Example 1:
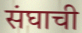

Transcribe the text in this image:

संघाची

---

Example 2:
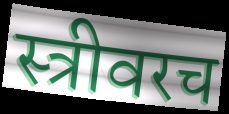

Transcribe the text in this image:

स्त्रीवरच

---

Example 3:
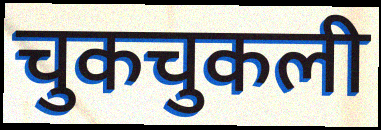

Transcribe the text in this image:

चुकचुकली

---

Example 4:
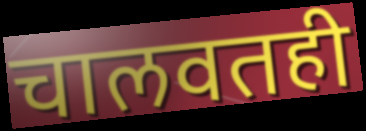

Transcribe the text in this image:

चालवतही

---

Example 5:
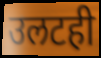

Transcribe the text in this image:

उलटही